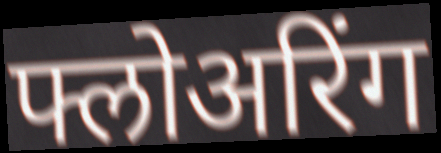
फ्लोअरिंग